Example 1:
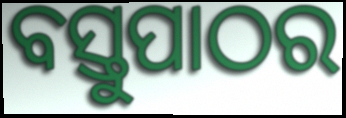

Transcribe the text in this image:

ବସ୍ତୁପାଠର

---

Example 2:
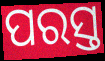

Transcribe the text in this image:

ପରସ୍ତ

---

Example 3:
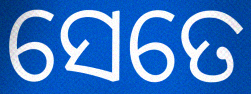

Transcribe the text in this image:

ସେତେ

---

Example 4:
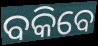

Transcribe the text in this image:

ବକିବେ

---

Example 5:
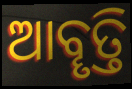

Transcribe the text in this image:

ଆବୄତ୍ତି